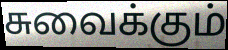
சுவைக்கும்